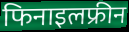
फिनाइलफ्रीन